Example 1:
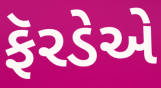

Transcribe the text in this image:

ફૅરડેએ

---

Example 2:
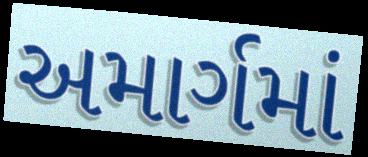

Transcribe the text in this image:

અમાર્ગમાં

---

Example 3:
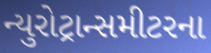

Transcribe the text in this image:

ન્યુરોટ્રાન્સમીટરના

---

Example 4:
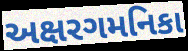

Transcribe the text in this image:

અક્ષરગમનિકા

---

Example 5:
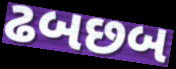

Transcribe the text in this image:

ઢબછબ